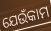
ଯେଉଁକାମ